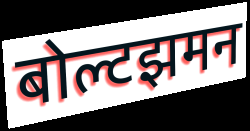
बोल्टझमन